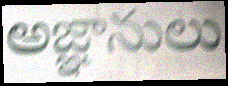
అజ్ఞానులు